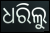
ଧରିଲୁ